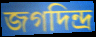
জগদিন্দ্র